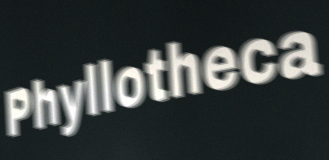
Phyllotheca